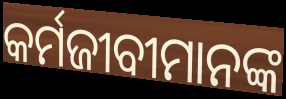
କର୍ମଜୀବୀମାନଙ୍କ